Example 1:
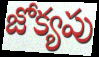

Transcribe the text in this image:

జోక్యపు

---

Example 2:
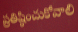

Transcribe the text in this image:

ప్రతిష్ఠించుకోవాలి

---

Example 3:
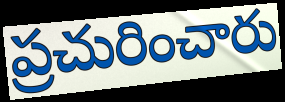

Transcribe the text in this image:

ప్రచురించారు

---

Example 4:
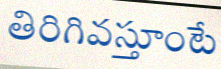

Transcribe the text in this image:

తిరిగివస్తూంటే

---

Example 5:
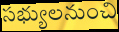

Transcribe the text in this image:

సభ్యులనుంచి